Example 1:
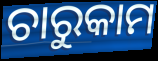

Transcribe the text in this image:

ଚାରୁକାମ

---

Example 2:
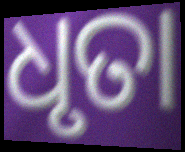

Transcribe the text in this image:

ଧୃତା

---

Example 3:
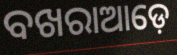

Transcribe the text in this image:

ବଖରାଆଡ଼େ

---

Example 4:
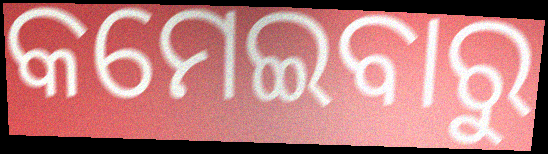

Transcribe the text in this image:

କମେଇବାରୁ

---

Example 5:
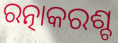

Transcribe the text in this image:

ରତ୍ନାକରଶ୍ଚ